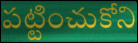
పట్టించుకోని